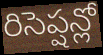
రిసెప్షన్లో